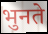
भुनते